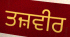
ਤਜ਼ਵੀਰ